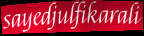
sayedjulfikarali